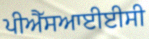
ਪੀਐੱਸਆਈਈਸੀ